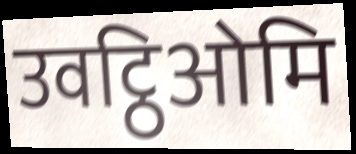
उवट्ठिओमि